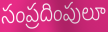
సంప్రదింపులూ